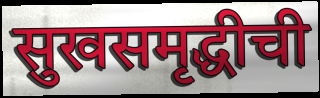
सुखसमृद्धीची